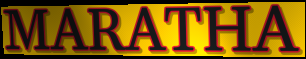
MARATHA